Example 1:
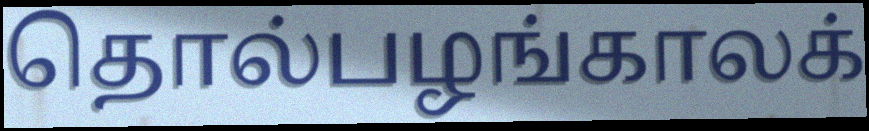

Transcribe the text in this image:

தொல்பழங்காலக்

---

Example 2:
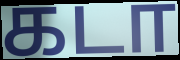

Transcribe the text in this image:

கடா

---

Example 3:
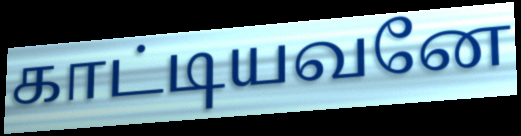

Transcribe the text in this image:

காட்டியவனே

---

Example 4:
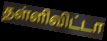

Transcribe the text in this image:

தள்ளிவிட்டா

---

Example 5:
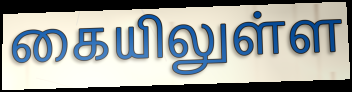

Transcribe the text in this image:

கையிலுள்ள